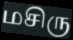
மசிரு